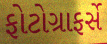
ફોટોગ્રાફર્સે